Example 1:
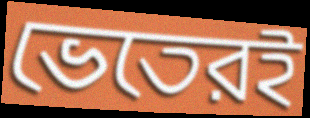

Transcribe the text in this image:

ভেতেরই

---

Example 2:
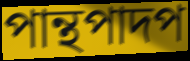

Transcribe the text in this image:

পান্থপাদপ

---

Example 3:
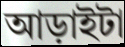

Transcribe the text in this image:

আড়াইটা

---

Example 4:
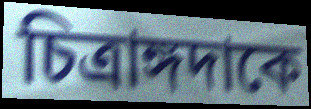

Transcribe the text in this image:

চিত্রাঙ্গদাকে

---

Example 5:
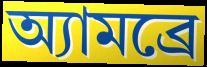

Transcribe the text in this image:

অ্যামব্রে